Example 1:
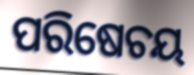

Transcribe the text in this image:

ପରିଷେଚୟ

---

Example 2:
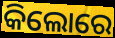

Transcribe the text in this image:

କିଲୋରେ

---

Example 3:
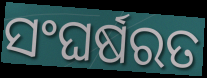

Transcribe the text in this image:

ସଂଘର୍ଷରତ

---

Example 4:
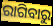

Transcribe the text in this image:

ରାଗିବାରୁ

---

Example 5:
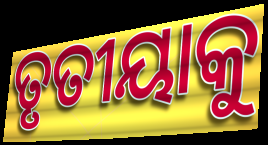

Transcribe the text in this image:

ତୃତୀୟାକୁ